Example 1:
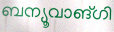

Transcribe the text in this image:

ബന്യൂവാങ്ഗി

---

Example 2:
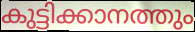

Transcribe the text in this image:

കുട്ടിക്കാനത്തും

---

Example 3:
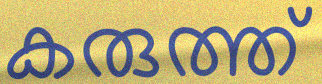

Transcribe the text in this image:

കരുത്ത്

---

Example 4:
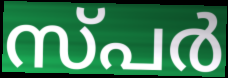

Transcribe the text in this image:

സ്പർ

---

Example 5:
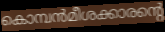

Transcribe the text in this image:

കൊമ്പൻമീശക്കാരന്റെ